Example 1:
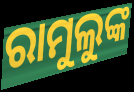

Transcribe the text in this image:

ରାମୁଲୁଙ୍କ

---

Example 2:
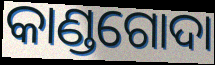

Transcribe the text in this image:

କାଣ୍ଡଗୋଦା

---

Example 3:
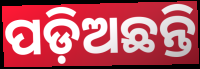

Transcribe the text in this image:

ପଡ଼ିଅଛନ୍ତି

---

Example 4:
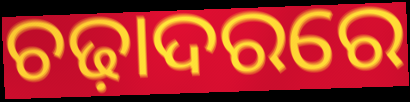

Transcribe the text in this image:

ଚଢ଼ାଦରରେ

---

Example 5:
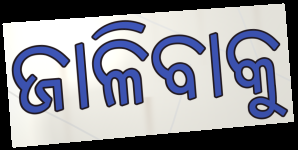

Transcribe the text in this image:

ଜାଳିବାକୁ